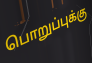
பொறுப்புக்கு